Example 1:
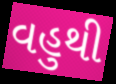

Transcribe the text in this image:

વહુથી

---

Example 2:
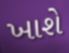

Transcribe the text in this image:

ખાશે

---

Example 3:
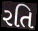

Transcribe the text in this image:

રતિ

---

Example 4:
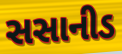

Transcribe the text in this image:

સસાનીડ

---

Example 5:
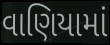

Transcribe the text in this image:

વાણિયામાં